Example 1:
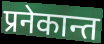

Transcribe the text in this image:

प्रनेकान्त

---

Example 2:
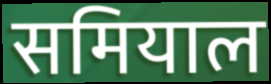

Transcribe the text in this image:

समियाल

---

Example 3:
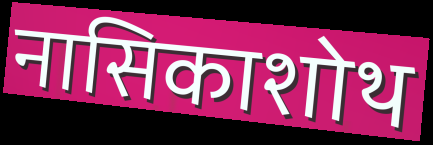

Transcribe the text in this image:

नासिकाशोथ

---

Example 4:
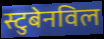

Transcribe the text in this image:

स्टुबेनविल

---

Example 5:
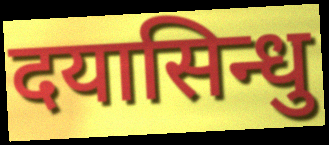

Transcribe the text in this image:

दयासिन्धु